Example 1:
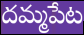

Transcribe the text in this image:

దమ్మపేట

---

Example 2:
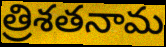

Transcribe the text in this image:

త్రిశతనామ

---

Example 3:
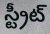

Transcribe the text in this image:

స్ట్రీట్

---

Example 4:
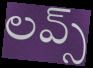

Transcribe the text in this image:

లవ్స్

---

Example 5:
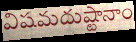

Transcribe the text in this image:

విషమదుష్టానాం